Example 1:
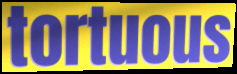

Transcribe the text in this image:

tortuous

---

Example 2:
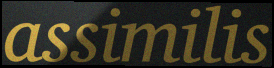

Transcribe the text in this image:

assimilis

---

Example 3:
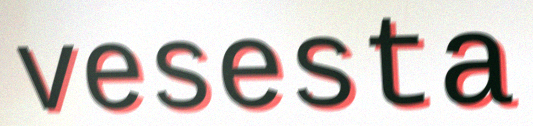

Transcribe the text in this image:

vesesta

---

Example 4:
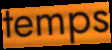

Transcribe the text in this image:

temps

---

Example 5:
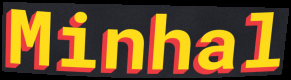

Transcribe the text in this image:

Minhal